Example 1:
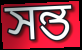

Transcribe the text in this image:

সন্ত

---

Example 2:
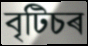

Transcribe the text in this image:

বৃটিচৰ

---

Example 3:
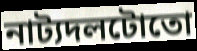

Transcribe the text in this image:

নাট্যদলটোতো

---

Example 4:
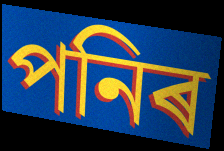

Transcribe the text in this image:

পনিৰ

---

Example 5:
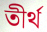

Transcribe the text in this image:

তীৰ্থ